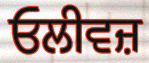
ਓਲੀਵਜ਼